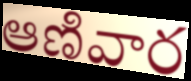
ఆణివార